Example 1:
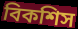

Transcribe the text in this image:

বিকশিস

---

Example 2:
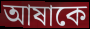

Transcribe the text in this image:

আষাকে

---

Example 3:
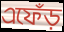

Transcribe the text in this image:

এফেঁড়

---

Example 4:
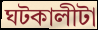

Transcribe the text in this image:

ঘটকালীটা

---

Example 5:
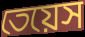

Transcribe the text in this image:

তেয়েস